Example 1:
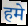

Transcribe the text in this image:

हमे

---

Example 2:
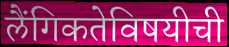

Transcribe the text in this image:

लैंगिकतेविषयीची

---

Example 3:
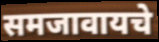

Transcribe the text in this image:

समजावायचे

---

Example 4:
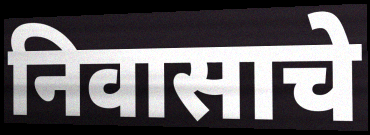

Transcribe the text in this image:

निवासाचे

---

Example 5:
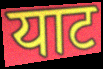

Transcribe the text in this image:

याट